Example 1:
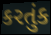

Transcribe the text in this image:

કરતુંક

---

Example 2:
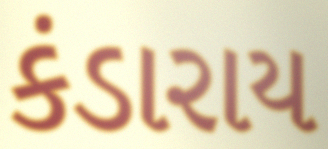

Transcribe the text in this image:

કંડારાય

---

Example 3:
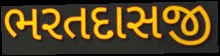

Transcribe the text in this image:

ભરતદાસજી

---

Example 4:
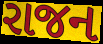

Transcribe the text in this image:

રાજન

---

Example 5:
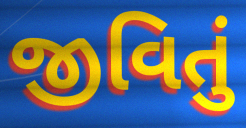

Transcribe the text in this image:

જીવિતું